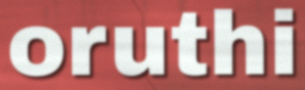
oruthi